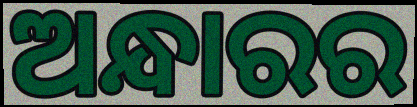
ଅନ୍ଧାରର